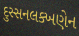
દુસ્સનલક્ખણેન